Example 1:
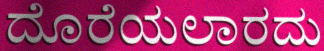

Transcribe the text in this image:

ದೊರೆಯಲಾರದು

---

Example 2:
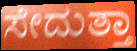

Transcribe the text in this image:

ಸೇದುತ್ತಾ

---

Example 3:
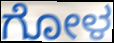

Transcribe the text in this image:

ಗೋಳ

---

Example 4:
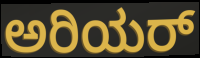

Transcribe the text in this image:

ಅರಿಯರ್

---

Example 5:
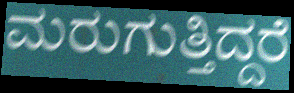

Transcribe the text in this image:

ಮರುಗುತ್ತಿದ್ದರೆ